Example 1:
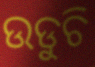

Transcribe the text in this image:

ଉଡୁଚି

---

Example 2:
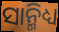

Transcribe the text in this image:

ସାନ୍ମିଧ୍ୟ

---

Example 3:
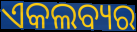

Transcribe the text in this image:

ଏକଲବ୍ୟର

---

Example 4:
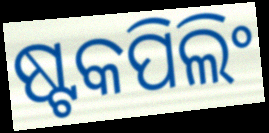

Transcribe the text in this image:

ଷ୍ଟକପିଲିଂ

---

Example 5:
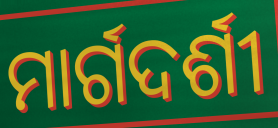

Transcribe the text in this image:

ମାର୍ଗଦର୍ଶୀ